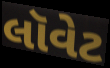
લૉવેટ